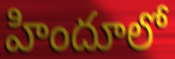
హిందూలో